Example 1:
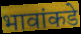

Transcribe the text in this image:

भावांकडे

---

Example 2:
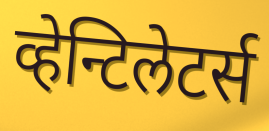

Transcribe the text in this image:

व्हेन्टिलेटर्स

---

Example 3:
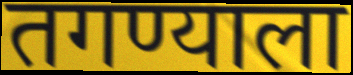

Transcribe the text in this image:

तगण्याला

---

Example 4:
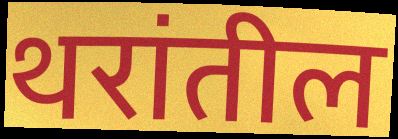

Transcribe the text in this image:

थरांतील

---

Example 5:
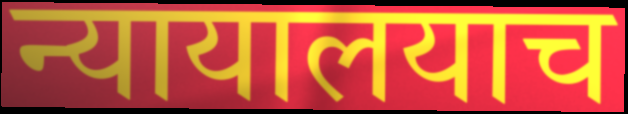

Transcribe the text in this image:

न्यायालयाच